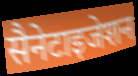
सैनेटाइजेशन